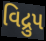
વિદ્રુપ